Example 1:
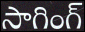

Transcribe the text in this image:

సాగింగ్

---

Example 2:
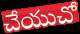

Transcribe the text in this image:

చేయుచో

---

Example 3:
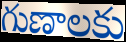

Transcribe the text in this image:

గుణాలకు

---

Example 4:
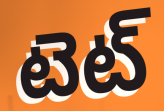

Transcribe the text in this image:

టెట్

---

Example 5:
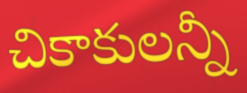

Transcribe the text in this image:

చికాకులన్నీ